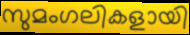
സുമംഗലികളായി